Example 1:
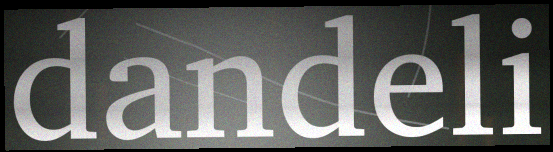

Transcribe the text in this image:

dandeli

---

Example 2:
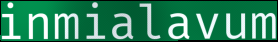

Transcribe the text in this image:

inmialavum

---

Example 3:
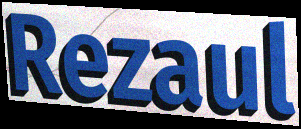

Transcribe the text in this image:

Rezaul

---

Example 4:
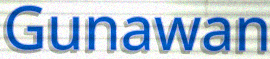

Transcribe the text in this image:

Gunawan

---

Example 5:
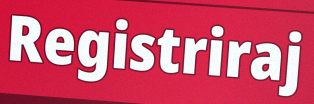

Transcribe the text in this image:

Registriraj